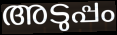
അടുപ്പം